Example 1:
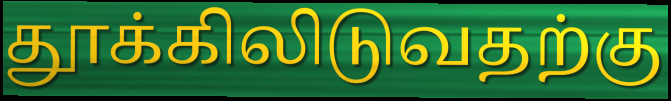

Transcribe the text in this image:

தூக்கிலிடுவதற்கு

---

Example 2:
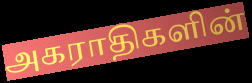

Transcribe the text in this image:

அகராதிகளின்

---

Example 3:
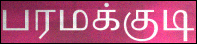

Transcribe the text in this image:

பரமக்குடி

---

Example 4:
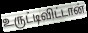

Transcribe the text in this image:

உருட்டிவிட்டான்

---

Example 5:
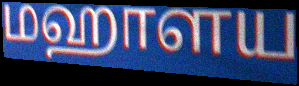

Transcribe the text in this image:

மஹாளய